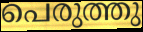
പെരുത്തു